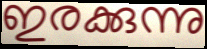
ഇരക്കുന്നു